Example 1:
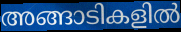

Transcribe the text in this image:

അങ്ങാടികളിൽ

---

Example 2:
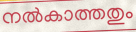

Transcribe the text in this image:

നൽകാത്തതും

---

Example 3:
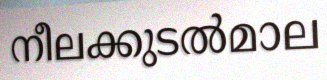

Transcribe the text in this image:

നീലക്കുടൽമാല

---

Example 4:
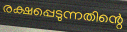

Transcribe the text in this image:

രക്ഷപ്പെടുന്നതിന്റെ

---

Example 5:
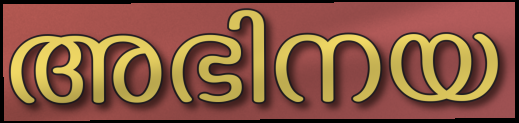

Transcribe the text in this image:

അഭിനയ